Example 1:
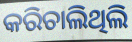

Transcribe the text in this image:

କରିଚାଲିଥିଲି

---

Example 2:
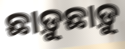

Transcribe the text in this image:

ଛାଡ଼ୁଛାଡ଼ୁ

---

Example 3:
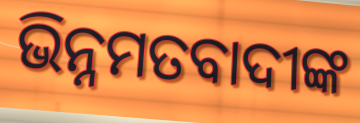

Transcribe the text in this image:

ଭିନ୍ନମତବାଦୀଙ୍କ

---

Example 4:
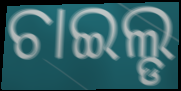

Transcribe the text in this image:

ଚାଇଲ୍ଡ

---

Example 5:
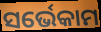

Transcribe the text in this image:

ସର୍ଭେକାମ